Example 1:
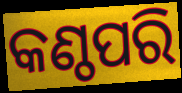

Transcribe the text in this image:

କଣ୍ଠପରି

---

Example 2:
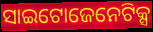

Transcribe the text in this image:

ସାଇଟୋଜେନେଟିକ୍ସ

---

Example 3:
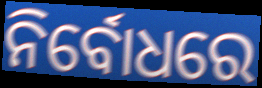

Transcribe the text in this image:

ନିର୍ବୋଧରେ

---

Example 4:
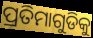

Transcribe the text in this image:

ପ୍ରତିମାଗୁଡିକୁ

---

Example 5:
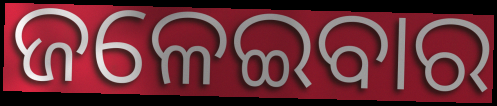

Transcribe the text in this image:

ଜଳେଇବାର